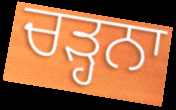
ਚੜ੍ਹਨਾ